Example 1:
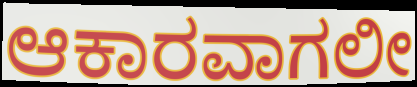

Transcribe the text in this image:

ಆಕಾರವಾಗಲೀ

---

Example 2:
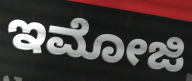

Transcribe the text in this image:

ಇಮೋಜಿ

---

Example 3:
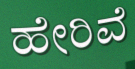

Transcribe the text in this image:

ಹೇರಿವೆ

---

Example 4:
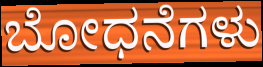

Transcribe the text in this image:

ಬೋಧನೆಗಳು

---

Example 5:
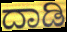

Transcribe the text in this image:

ದಾಡಿ